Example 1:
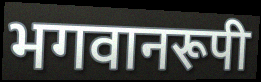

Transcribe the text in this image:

भगवानरूपी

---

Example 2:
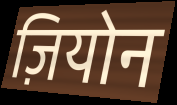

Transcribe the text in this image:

ज़ियोन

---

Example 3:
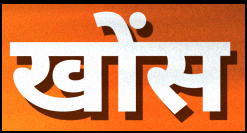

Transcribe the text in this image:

खोंस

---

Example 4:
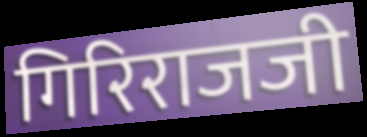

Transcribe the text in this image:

गिरिराजजी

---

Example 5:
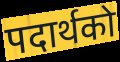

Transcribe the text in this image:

पदार्थको